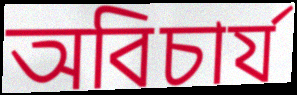
অবিচার্য